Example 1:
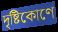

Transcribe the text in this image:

দৃষ্টিকোণে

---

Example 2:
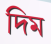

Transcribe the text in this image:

দিম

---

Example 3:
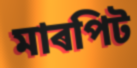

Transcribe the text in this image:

মাৰপিট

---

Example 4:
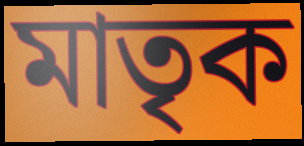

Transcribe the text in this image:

মাতৃক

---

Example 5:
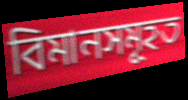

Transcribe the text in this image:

বিমানসমূহত